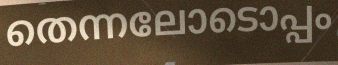
തെന്നലോടൊപ്പം